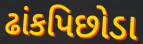
ઢાંકપિછોડા